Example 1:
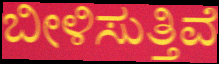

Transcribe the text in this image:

ಬೀಳಿಸುತ್ತಿವೆ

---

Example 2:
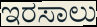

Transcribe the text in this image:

ಇರಸಾಲು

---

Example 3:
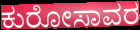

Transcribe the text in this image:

ಕುರೋಸಾವರ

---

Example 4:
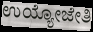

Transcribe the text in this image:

ಉಯ್ಯೋಜೇತಿ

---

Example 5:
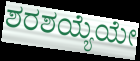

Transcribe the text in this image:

ಶರಶಯ್ಯೆಯೇ